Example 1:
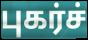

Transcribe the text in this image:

புகர்ச்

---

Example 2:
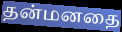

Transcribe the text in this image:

தன்மனதை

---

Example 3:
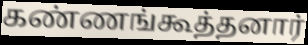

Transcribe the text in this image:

கண்ணங்கூத்தனார்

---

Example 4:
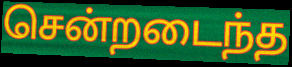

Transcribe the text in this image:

சென்றடைந்த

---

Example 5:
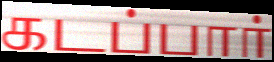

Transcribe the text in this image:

கடப்பார்